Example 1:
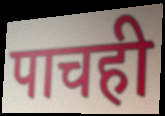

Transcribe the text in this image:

पाचही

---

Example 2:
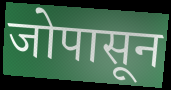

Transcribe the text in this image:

जोपासून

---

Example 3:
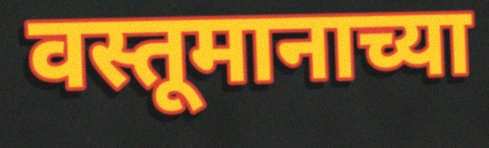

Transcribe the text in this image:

वस्तूमानाच्या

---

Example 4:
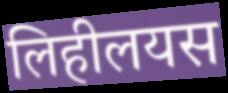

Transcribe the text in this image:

लिहीलयस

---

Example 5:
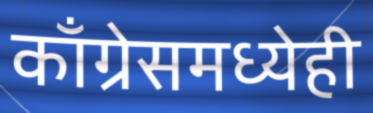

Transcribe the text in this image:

काँग्रेसमध्येही